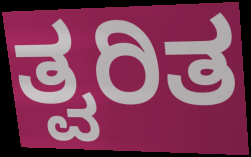
ತ್ವರಿತ